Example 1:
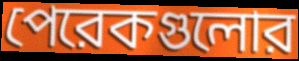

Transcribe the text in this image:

পেরেকগুলোর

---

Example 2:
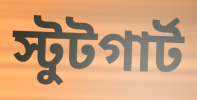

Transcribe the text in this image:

স্টুটগার্ট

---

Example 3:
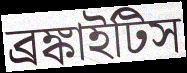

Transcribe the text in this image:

ব্রঙ্কাইটিস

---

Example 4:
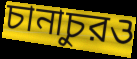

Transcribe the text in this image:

চানাচুরও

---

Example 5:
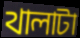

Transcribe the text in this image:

থালাটা